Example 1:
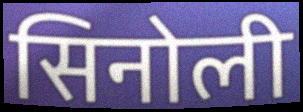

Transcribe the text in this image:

सिनोली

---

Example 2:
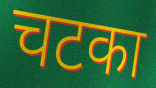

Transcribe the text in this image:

चटका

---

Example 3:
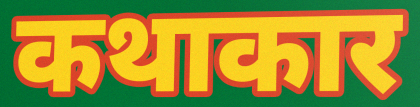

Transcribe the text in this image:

कथाकार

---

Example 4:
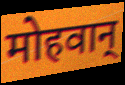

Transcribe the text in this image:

मोहवान्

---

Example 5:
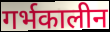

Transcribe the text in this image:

गर्भकालीन